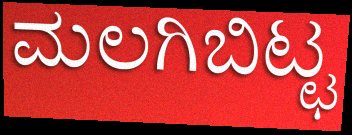
ಮಲಗಿಬಿಟ್ಟ